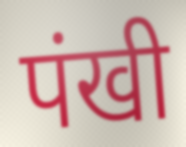
पंखी